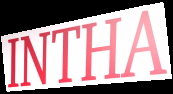
INTHA